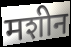
मशीन